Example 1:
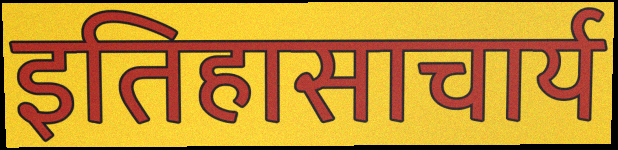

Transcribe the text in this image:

इतिहासाचार्य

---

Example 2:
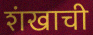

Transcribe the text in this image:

शंखाची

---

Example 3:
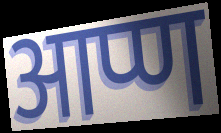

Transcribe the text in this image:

आप्ण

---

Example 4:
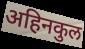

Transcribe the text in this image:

अहिनकुल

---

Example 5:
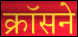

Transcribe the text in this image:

क्रॉसने